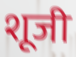
शूजी